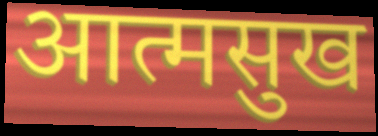
आत्मसुख